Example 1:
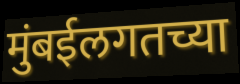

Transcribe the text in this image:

मुंबईलगतच्या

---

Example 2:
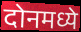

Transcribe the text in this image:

दोनमध्ये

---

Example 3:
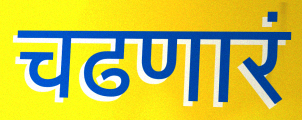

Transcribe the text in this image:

चढणारं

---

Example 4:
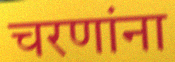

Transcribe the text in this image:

चरणांना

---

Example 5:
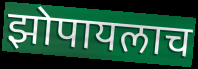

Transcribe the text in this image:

झोपायलाच